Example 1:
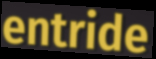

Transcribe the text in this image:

entride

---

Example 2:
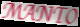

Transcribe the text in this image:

MANTO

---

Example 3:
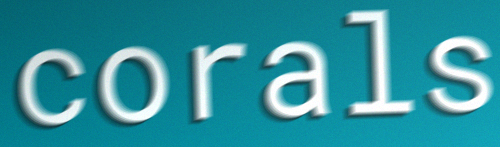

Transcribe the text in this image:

corals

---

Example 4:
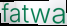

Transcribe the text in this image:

fatwa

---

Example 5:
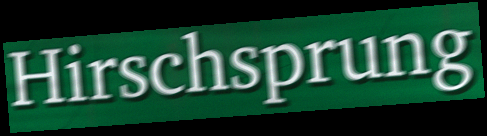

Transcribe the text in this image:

Hirschsprung